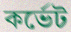
কর্ভেট